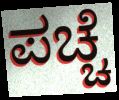
ಪಚ್ಚೆ